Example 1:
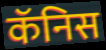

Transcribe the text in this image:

कॅनिस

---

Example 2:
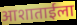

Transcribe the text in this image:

आशाताईला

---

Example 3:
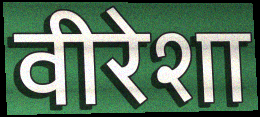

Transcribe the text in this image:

वीरेशा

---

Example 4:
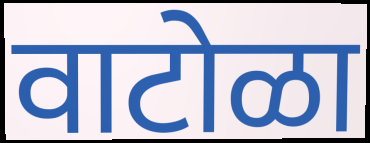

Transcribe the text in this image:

वाटोळा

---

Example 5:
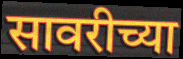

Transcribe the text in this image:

सावरीच्या